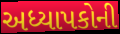
અધ્યાપકોની